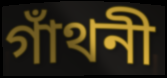
গাঁথনী